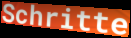
Schritte